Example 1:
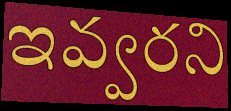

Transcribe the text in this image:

ఇవ్వరని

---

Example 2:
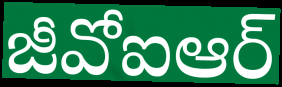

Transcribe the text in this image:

జీవోఐఆర్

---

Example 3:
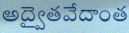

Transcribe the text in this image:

అద్వైతవేదాంత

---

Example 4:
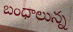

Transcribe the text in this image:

బంధాలున్న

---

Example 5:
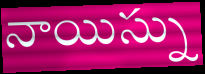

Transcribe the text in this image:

నాయిస్ను